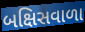
બક્ષિસવાળા